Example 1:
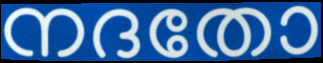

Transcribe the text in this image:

നദതോ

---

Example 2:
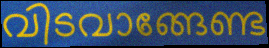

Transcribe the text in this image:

വിടവാങ്ങേണ്ട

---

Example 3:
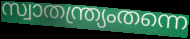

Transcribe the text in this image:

സ്വാതന്ത്ര്യംതന്നെ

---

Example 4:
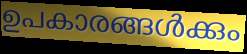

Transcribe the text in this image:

ഉപകാരങ്ങൾക്കും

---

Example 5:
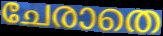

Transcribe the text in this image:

ചേരാതെ